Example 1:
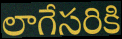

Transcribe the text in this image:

లాగేసరికి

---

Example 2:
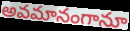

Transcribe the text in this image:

అవమానంగానూ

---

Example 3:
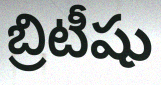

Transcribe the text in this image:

బ్రిటీషు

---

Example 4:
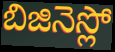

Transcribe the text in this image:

బిజినెస్లో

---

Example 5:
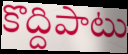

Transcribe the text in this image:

కొద్దిపాటు